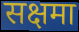
सक्षमा